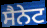
ਸੈਨੇਟ